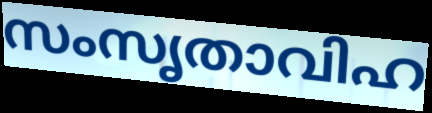
സംസൃതാവിഹ